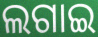
ଲଗାଇ